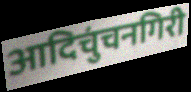
आदिचुंचनगिरी